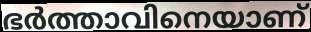
ഭർത്താവിനെയാണ്